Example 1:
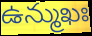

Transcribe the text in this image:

ఉన్ముఖః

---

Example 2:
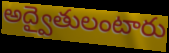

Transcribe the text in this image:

అద్వైతులంటారు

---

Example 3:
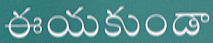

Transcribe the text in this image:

ఈయకుండా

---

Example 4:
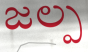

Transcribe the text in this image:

జల్ప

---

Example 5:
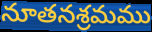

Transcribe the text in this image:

నూతనశ్రమము